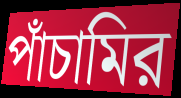
পাঁচামির